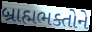
બ્રાહ્મભક્તોને